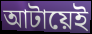
আটায়েই